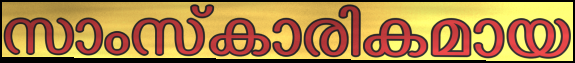
സാംസ്‌കാരികമായ